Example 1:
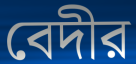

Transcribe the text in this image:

বেদীর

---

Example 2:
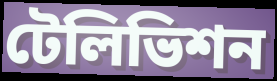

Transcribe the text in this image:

টেলিভিশন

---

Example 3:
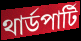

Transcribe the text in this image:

থার্ডপার্টি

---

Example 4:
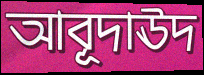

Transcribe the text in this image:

আবূদাঊদ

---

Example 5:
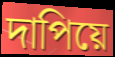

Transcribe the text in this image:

দাপিয়ে